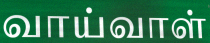
வாய்வாள்